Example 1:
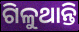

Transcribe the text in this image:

ଗିଳୁଥାନ୍ତି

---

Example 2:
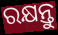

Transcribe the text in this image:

ରକ୍ଷନ୍ତୁ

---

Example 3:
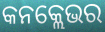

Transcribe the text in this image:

କନକ୍ଲେଭର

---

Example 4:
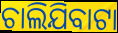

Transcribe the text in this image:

ଚାଲିଯିବାଟା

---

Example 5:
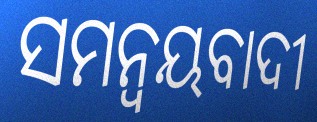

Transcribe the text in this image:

ସମନ୍ୱୟବାଦୀ